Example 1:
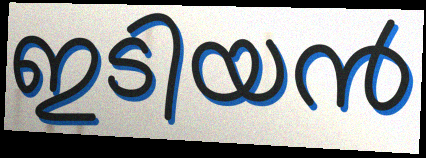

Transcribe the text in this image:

ഇടിയൻ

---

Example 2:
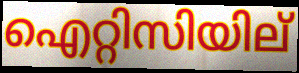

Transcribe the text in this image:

ഐറ്റിസിയില്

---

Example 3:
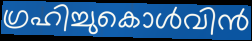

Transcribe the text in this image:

ഗ്രഹിച്ചുകൊൾവിൻ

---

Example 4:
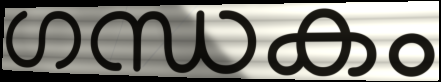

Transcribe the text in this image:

ഗന്ധകം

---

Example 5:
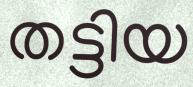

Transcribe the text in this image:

തട്ടിയ